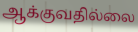
ஆக்குவதில்லை